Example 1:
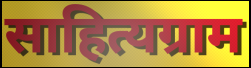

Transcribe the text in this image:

साहित्यग्राम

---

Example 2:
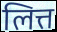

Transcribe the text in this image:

लित्त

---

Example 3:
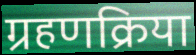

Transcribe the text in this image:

ग्रहणक्रिया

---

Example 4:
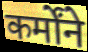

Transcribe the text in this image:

कर्मोंने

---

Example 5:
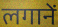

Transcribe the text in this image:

लगानें